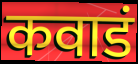
कवाडं